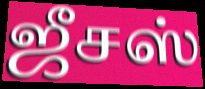
ஜீசஸ்